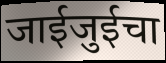
जाईजुईचा